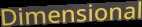
Dimensional